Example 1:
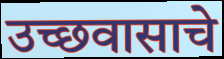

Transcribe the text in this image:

उच्छवासाचे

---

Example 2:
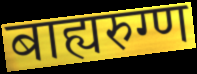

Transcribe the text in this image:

बाह्यरुग्ण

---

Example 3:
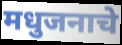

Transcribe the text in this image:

मधुजनाचे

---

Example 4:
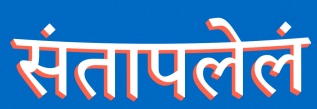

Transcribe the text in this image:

संतापलेलं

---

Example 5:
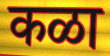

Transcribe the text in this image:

कळा